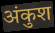
अंकुश